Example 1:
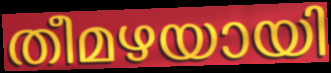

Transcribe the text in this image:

തീമഴയായി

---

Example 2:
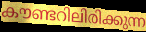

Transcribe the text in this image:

കൗണ്ടറിലിരിക്കുന്ന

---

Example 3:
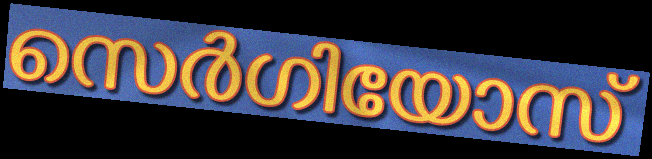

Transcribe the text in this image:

സെർഗിയോസ്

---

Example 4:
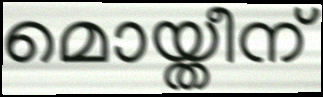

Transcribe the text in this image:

മൊയ്തീന്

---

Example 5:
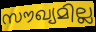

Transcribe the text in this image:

സൗഖ്യമില്ല